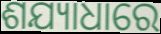
ଶଯ୍ୟାଧାରେ